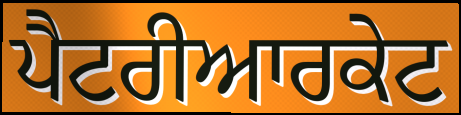
ਪੈਟਰੀਆਰਕੇਟ